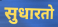
सुधारतो